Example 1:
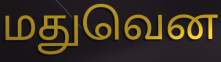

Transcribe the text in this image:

மதுவென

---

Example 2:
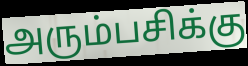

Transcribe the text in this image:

அரும்பசிக்கு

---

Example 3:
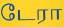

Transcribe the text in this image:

டேரா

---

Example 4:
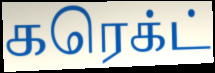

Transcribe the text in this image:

கரெக்ட்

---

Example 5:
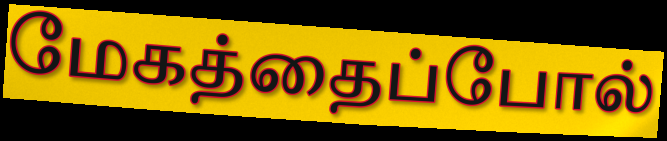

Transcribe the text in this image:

மேகத்தைப்போல்